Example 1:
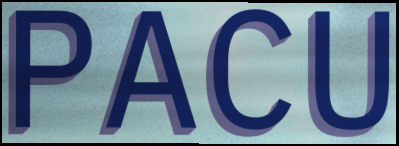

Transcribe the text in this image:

PACU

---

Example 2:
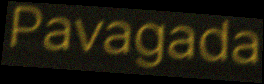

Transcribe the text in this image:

Pavagada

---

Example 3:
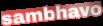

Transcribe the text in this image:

sambhavo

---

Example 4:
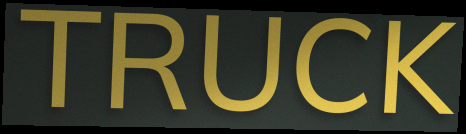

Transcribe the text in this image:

TRUCK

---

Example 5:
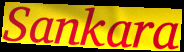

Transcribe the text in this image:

Sankara